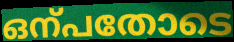
ഒന്പതോടെ